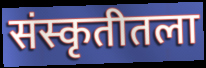
संस्कृतीतला